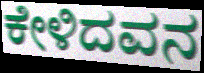
ಕೇಳಿದವನ